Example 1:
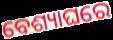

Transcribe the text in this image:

ବେଶ୍ୟାଘରେ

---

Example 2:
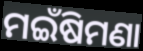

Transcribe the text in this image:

ମଇଁଷିମଣା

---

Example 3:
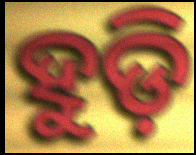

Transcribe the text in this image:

ହୁଡ଼ି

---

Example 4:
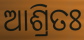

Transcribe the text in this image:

ଆଶ୍ରିତଃ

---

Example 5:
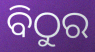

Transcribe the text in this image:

ବିଠୁର